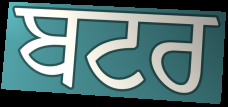
ਬਟਰ